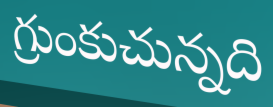
గ్రుంకుచున్నది